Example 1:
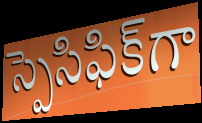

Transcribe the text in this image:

స్పెసిఫిక్‌గా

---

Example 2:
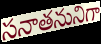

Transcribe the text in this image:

సనాతనునిగా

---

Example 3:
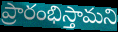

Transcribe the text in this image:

ప్రారంభిస్తామని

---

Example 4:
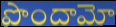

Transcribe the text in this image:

పొందామో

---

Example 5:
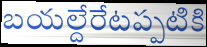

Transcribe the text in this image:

బయల్దేరేటప్పటికి